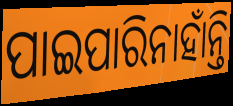
ପାଇପାରିନାହାଁନ୍ତି